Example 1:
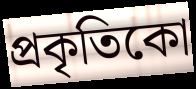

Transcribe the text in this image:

প্ৰকৃতিকো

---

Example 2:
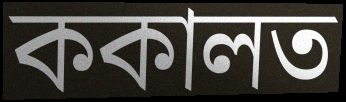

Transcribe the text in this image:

ককালত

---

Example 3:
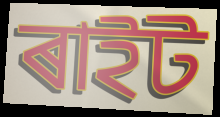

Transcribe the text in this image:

ৰাইট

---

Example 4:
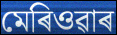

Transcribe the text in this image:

মেৰিওৱাৰ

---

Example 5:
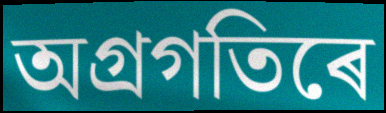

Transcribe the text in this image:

অগ্ৰগতিৰে